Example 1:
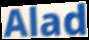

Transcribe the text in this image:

Alad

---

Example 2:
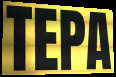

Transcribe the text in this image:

TEPA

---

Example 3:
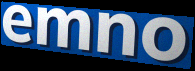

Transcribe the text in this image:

emno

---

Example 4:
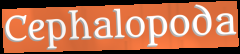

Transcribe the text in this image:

Cephalopoda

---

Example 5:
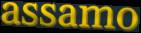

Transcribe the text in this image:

assamo